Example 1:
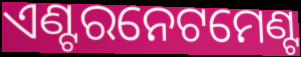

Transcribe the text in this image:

ଏଣ୍ଟରନେଟମେଣ୍ଟ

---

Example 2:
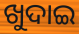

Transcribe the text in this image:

ଖୁଦାଇ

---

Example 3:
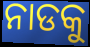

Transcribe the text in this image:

ନାଡକୁ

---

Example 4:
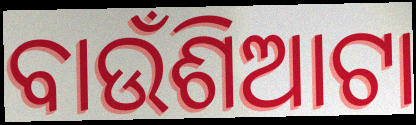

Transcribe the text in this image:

ବାଉଁଶିଆଟା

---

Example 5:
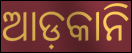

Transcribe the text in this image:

ଆଡ଼କାନି